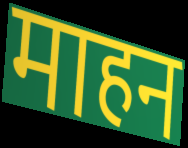
माहन